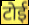
टोई